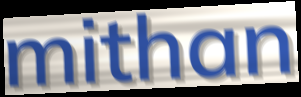
mithan